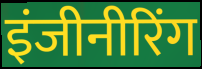
इंजीनीरिंग